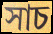
সাচ